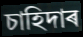
চাহিদাৰ